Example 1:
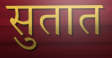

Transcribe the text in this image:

सुतात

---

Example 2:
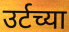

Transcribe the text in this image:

उर्टच्या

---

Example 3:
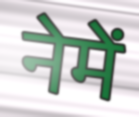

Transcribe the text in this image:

नेमें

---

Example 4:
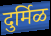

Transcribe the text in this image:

दुर्मिळ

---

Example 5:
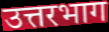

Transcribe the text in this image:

उत्तरभाग